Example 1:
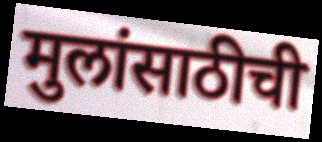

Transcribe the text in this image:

मुलांसाठीची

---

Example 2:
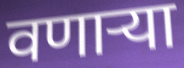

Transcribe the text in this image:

वणाऱ्या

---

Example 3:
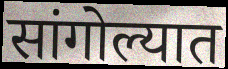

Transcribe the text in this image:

सांगोल्यात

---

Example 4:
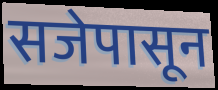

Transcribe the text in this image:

सजेपासून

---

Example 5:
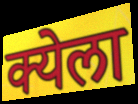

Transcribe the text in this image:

क्येला